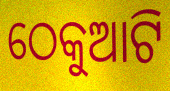
ଠେକୁଆଟି